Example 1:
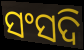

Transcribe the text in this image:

ସଂସଦି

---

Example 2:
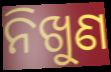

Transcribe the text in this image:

ନିଖୁଣ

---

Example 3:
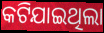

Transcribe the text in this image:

କଟିଯାଇଥିଲା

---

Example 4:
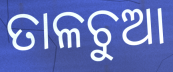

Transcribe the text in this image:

ତାଳଚୁଆ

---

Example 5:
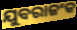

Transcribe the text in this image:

ଯୁବରାଜଂକ